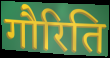
गौरिति